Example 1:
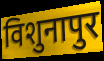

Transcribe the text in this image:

विशुनापुर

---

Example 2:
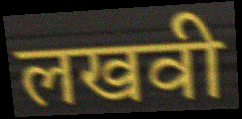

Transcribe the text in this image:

लखवी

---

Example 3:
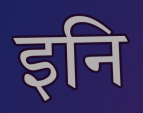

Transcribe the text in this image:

इनि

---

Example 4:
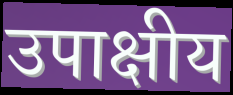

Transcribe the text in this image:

उपाक्षीय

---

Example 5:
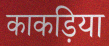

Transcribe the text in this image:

काकड़िया